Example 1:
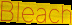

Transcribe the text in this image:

Bleach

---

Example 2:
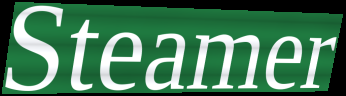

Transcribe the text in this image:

Steamer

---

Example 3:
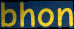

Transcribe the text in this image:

bhon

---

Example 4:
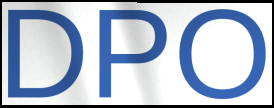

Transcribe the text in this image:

DPO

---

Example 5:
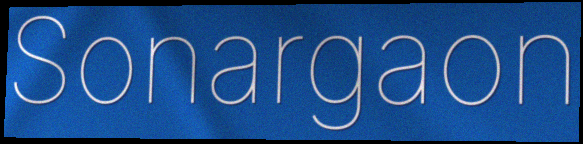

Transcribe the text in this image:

Sonargaon